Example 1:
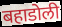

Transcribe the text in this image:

बहाडोली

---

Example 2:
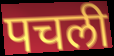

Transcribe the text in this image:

पचली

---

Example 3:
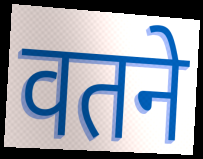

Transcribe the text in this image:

वतने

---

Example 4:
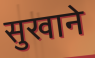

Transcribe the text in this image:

सुखाने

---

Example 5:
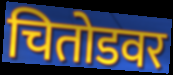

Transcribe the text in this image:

चितोडवर